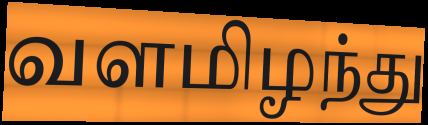
வளமிழந்து